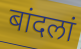
बांदलां